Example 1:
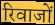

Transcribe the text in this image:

रिवाजों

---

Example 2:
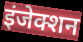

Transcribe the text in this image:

इंजेक्शन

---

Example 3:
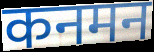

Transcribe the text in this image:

कनमन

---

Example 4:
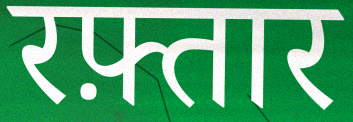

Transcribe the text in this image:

रफ़्तार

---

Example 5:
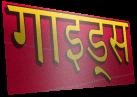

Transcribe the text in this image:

गाइड्स